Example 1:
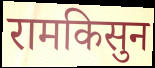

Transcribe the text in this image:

रामकिसुन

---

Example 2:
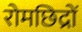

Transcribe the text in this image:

रोमछिद्रों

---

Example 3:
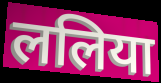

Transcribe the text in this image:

ललिया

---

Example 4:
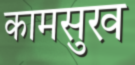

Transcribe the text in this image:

कामसुख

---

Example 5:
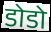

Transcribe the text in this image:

डोडो